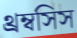
থ্রম্বসিস